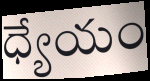
ధ్యేయం